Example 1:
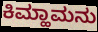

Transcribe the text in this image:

ಕಿಮ್ಹಾಮನು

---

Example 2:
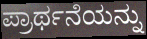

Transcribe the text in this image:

ಪ್ರಾರ್ಥನೆಯನ್ನು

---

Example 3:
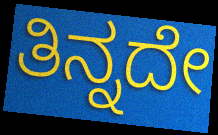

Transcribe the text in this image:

ತಿನ್ನದೇ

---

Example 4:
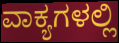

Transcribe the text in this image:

ವಾಕ್ಯಗಳಲ್ಲಿ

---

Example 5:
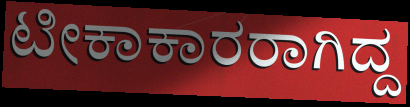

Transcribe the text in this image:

ಟೀಕಾಕಾರರಾಗಿದ್ದ